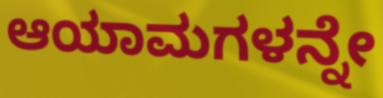
ಆಯಾಮಗಳನ್ನೇ